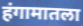
हंगामातला